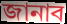
জানাব